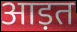
आड़त